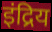
इंद्रिय